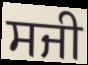
ਸਜੀ